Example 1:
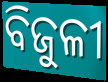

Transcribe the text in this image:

ବିଜୁଳୀ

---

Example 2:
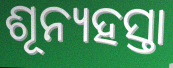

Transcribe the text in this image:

ଶୂନ୍ୟହସ୍ତା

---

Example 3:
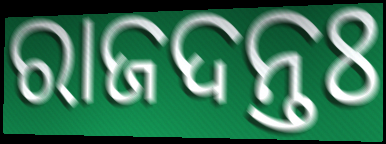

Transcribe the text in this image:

ରାଜଦନ୍ତଃ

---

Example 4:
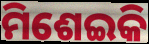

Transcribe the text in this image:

ମିଶେଇକି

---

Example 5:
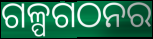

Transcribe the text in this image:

ଗଳ୍ପଗଠନର